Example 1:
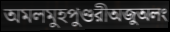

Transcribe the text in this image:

অমলমুহপুণ্ডরীঅজুঅলং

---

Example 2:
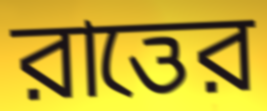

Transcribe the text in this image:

রাত্তের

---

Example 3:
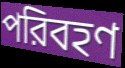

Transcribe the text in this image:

পরিবহণ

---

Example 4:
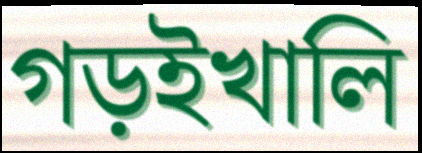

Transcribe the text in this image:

গড়ইখালি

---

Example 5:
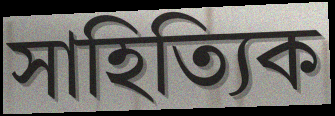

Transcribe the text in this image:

সাহিত্যিক